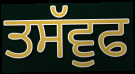
ਤਸੱਵੁਫ